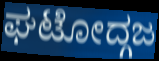
ಘಟೋದ್ಗಜ